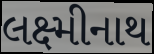
લક્ષ્મીનાથ